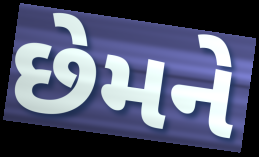
છેમને